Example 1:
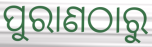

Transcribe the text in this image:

ପୁରାଣଠାରୁ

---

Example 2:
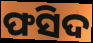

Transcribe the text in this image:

ଫସିଦ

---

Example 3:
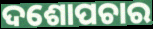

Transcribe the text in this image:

ଦଶୋପଚାର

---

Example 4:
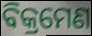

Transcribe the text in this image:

ବିକ୍ରମେଣ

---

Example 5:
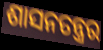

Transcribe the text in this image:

ଶାସନତନ୍ତ୍ରର